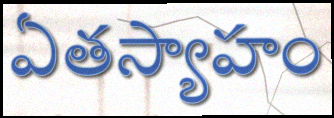
ఏతస్యాహం